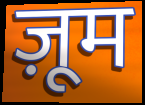
ज़ूम